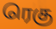
ரெகு